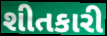
શીતકારી